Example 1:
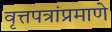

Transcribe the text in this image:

वृत्तपत्रांप्रमाणे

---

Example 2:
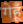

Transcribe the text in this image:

गेहूँ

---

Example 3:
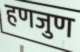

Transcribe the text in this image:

हणजुण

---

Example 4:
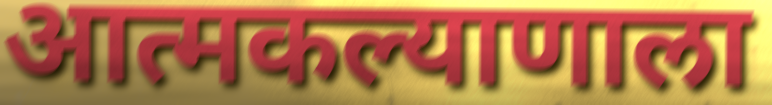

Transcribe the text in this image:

आत्मकल्याणाला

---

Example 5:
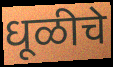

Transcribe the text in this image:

धूळीचे